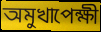
অমুখাপেক্ষী